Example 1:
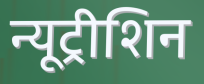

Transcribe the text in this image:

न्यूट्रीशिन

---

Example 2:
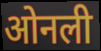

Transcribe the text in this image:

ओनली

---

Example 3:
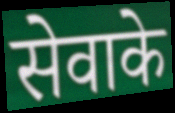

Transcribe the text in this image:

सेवाके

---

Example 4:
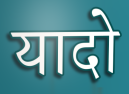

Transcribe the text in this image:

यादो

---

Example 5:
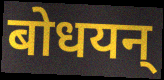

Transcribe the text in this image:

बोधयन्